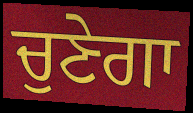
ਚੁਣੇਗਾ